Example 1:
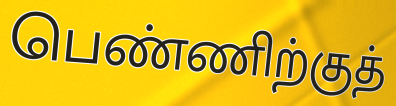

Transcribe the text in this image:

பெண்ணிற்குத்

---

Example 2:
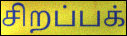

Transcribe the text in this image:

சிறப்பக்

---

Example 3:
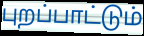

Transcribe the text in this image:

புறப்பாட்டும்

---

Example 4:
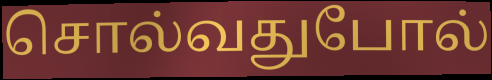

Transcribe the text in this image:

சொல்வதுபோல்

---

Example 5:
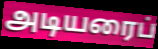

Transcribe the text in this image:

அடியரைப்